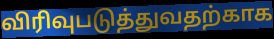
விரிவுபடுத்துவதற்காக